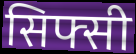
सिफ्सी